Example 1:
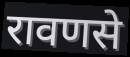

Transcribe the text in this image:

रावणसे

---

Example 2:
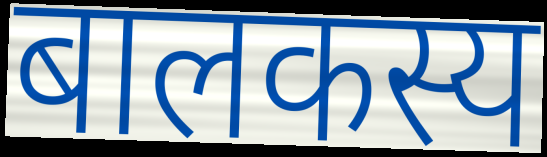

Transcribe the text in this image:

बालकस्य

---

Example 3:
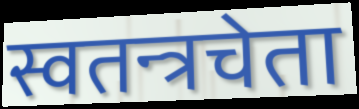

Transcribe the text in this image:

स्वतन्त्रचेता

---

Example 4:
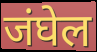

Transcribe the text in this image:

जंघेल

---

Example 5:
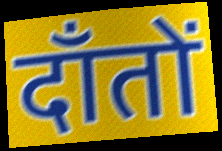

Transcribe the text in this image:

दाँतों